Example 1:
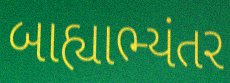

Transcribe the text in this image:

બાહ્યાભ્યંતર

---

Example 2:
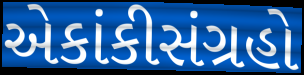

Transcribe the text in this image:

એકાંકીસંગ્રહો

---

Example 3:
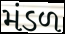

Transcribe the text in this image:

મંડળ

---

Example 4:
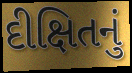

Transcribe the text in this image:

દીક્ષિતનું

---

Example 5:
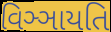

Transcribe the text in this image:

વિઞ્ઞાયતિ